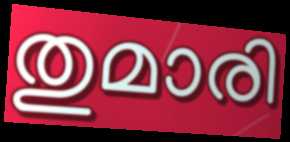
തുമാരി